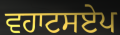
ਵਹਾਟਸਏਪ